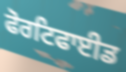
ਫੋਰਟਿਫਾਈਡ